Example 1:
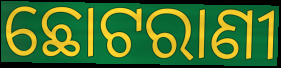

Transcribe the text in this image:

ଛୋଟରାଣୀ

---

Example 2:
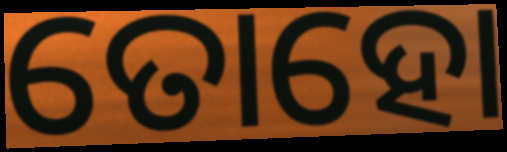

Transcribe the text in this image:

ତୋହୋ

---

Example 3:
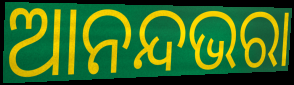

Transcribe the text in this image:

ଆନନ୍ଦଭରା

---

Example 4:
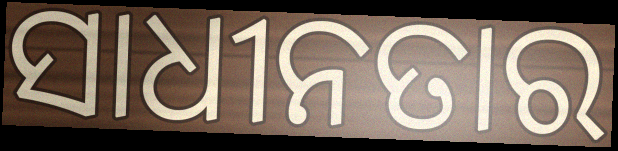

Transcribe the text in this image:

ସାଧୀନତାର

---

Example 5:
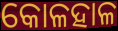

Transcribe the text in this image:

କୋଳହାଳ